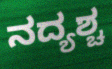
ನದ್ಯಶ್ಚ